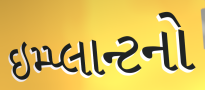
ઇમ્પ્લાન્ટનો